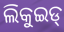
ଲିକୁଇଡ୍